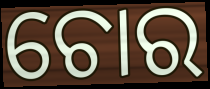
ଚୋର